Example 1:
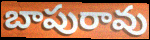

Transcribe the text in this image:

బాపురావు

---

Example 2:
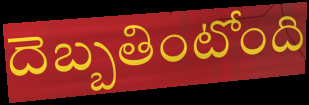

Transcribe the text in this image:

దెబ్బతింటోంది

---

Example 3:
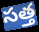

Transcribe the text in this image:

సత్త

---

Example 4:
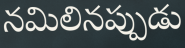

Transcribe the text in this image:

నమిలినప్పుడు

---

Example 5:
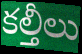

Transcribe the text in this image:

కల్తీలు